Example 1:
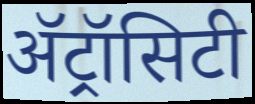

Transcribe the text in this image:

ॲट्रॉसिटी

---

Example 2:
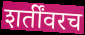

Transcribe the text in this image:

शर्तींवरच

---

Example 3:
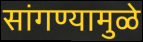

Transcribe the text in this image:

सांगण्यामुळे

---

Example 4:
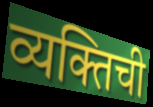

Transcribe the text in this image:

व्यक्तिची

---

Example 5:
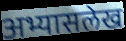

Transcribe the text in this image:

अभ्यासलेख